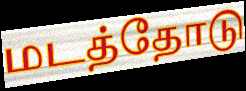
மடத்தோடு